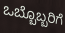
ಒಬ್ಬೊಬ್ಬರಿಗೆ